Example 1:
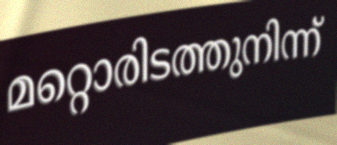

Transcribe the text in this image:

മറ്റൊരിടത്തുനിന്ന്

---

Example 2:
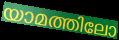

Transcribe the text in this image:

യാമത്തിലോ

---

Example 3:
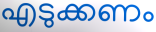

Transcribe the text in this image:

എടുക്കണം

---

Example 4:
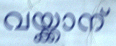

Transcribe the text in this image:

വയ്ക്കാന്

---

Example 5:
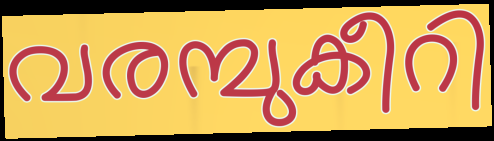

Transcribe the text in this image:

വരമ്പുകീറി